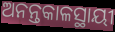
ଅନନ୍ତକାଳସ୍ଥାୟୀ